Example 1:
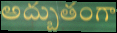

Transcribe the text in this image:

అద్బుతంగా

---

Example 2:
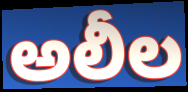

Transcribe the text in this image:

అలీల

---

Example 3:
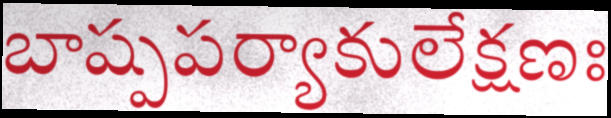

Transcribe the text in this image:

బాష్పపర్యాకులేక్షణః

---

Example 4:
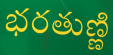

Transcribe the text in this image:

భరతుణ్ణి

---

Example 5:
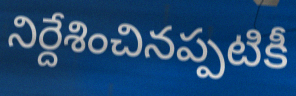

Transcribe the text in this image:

నిర్దేశించినప్పటికీ